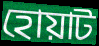
হোয়াট